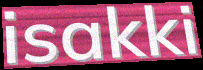
isakki